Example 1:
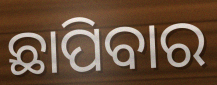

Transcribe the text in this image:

ଛାପିବାର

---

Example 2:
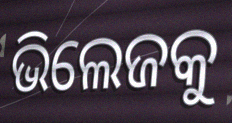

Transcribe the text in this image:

ଭିଲେଜକୁ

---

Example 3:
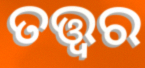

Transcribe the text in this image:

ତତ୍ତ୍ବର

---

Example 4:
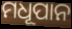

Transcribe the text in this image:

ମଧୂପାନ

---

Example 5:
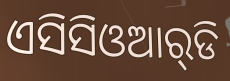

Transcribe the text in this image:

ଏସିସିଓଆର୍‌ଡି